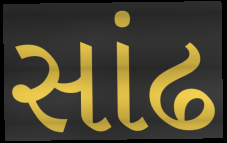
સાંઢ